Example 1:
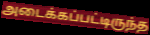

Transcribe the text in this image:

அடைக்கப்பட்டிருந்த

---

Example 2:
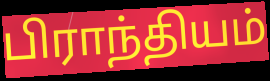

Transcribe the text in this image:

பிராந்தியம்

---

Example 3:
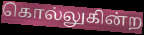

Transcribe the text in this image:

கொல்லுகின்ற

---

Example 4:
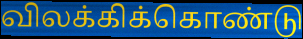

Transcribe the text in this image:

விலக்கிக்கொண்டு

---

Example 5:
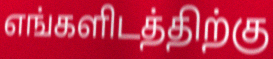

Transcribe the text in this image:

எங்களிடத்திற்கு